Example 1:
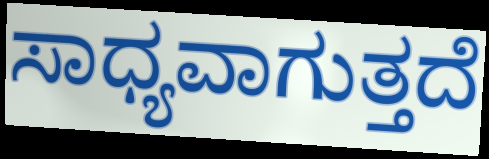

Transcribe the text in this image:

ಸಾಧ್ಯವಾಗುತ್ತದೆ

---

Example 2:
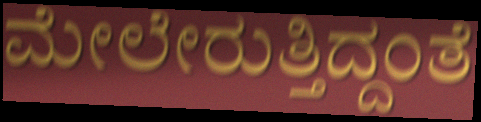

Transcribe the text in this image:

ಮೇಲೇರುತ್ತಿದ್ದಂತೆ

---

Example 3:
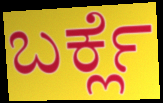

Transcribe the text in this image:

ಬರ್ಕ್ಲೆ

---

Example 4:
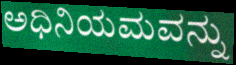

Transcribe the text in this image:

ಅಧಿನಿಯಮವನ್ನು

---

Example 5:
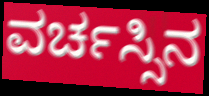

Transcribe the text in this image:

ವರ್ಚಸ್ಸಿನ